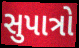
સુપાત્રો